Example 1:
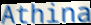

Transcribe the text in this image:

Athina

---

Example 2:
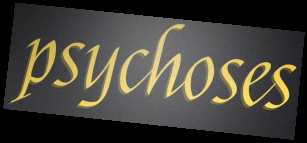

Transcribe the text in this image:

psychoses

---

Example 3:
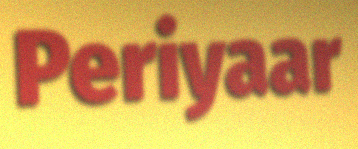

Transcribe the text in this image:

Periyaar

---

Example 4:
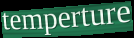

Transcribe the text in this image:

temperture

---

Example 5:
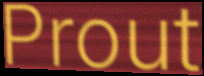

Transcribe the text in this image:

Prout